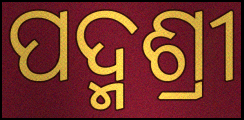
ପଦ୍ମଶ୍ରୀ